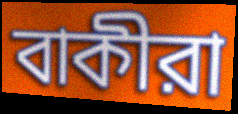
বাকীরা